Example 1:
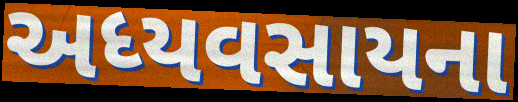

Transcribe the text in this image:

અધ્યવસાયના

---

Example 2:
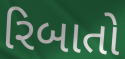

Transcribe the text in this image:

રિબાતો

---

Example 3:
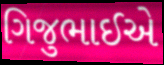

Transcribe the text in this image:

ગિજુભાઈએ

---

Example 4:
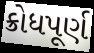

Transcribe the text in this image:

ક્રોધપૂર્ણ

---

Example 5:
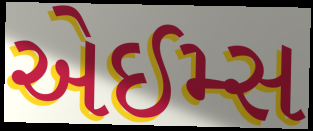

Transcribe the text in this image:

એઈમ્સ